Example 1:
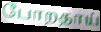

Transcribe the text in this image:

போறதாய்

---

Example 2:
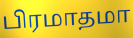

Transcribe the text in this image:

பிரமாதமா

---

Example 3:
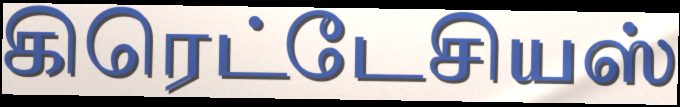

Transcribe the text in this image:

கிரெட்டேசியஸ்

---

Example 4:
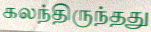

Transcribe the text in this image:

கலந்திருந்தது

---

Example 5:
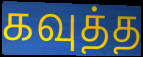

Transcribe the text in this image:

கவுத்த